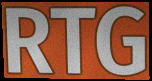
RTG